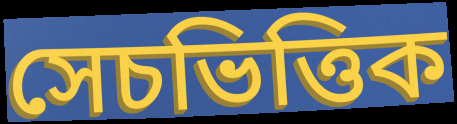
সেচভিত্তিক